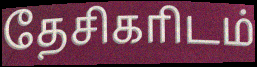
தேசிகரிடம்